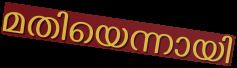
മതിയെന്നായി